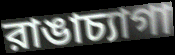
রাঙাচ্যাগা